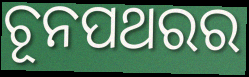
ଚୂନପଥରର